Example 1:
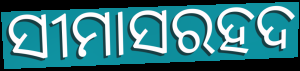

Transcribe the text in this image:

ସୀମାସରହଦ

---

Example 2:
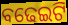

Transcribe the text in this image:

ବଢେଇଟି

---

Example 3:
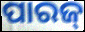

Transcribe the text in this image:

ପାରଜ୍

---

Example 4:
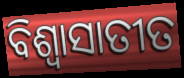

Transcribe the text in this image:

ବିଶ୍ୱାସାତୀତ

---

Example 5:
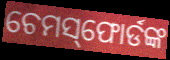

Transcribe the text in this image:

ଚେମସ୍‌ଫୋର୍ଡଙ୍କ